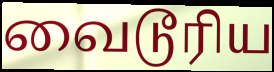
வைடூரிய